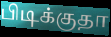
பிடிக்குதா